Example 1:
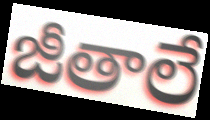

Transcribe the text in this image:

జీతాలే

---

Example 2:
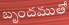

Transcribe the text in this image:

బృందముతో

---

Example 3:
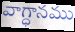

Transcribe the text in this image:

వాగ్ధానము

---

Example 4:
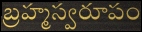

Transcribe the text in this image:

బ్రహ్మస్వరూపం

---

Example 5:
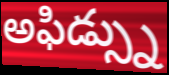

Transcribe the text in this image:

అఫిడ్స్ను